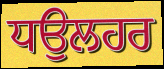
ਧਉਲਹਰ